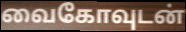
வைகோவுடன்